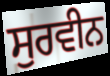
ਸੁਰਵੀਨ